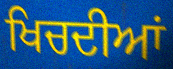
ਖਿਚਦੀਆਂ